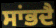
ਸਾਂਭਦੈ